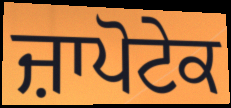
ਜ਼ਾਪੋਟੇਕ